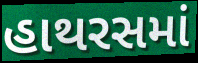
હાથરસમાં